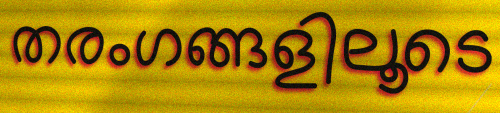
തരംഗങ്ങളിലൂടെ